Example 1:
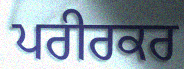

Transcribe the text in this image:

ਪਰੀਰਕਰ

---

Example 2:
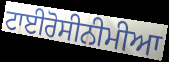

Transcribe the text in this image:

ਟਾਈਰੋਸੀਨੀਮੀਆ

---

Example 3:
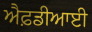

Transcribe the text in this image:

ਐਫ਼ਡੀਆਈ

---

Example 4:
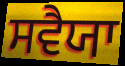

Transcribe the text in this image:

ਸਵੈਯਾ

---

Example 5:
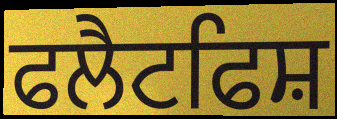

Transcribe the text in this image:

ਫਲੈਟਫਿਸ਼